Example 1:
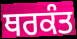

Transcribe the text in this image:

ਥਰਕੰਤ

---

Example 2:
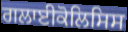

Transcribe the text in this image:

ਗਲਾਈਕੋਲਿਸਿਸ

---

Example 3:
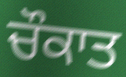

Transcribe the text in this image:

ਚੌਕਾਤ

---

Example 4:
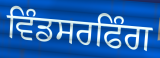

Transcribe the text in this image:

ਵਿੰਡਸਰਫਿੰਗ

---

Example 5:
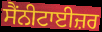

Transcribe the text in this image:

ਸੈਂਨੀਟਾਈਜ਼ਰ